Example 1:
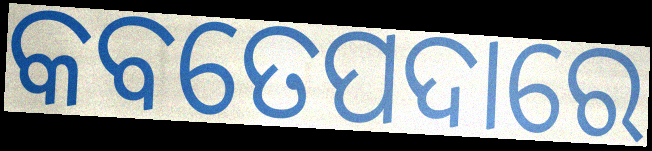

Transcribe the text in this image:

କବତେପଦାରେ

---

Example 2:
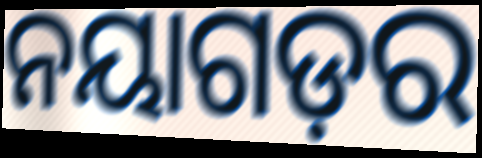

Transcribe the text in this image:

ନୟାଗଡ଼ର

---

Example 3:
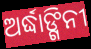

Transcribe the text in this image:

ଅର୍ଦ୍ଧାଙ୍ଗିନୀ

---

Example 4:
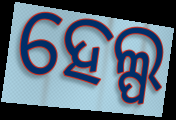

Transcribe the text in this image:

ହେଲ୍ପ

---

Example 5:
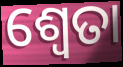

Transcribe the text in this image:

ଶ୍ୱେତା